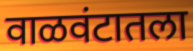
वाळवंटातला